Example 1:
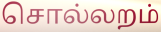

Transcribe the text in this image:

சொல்லறம்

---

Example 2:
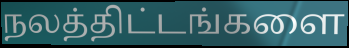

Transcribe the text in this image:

நலத்திட்டங்களை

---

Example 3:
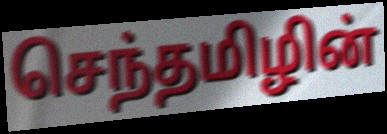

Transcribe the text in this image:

செந்தமிழின்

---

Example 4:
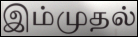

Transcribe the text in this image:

இம்முதல்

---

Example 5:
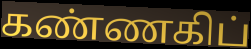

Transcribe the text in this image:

கண்ணகிப்